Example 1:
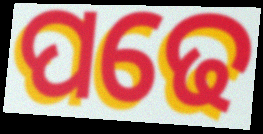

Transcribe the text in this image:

ପଢେ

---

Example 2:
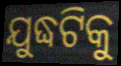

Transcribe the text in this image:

ଯୁଦ୍ଧଟିକୁ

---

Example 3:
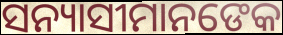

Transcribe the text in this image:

ସନ୍ୟାସୀମାନଙେକ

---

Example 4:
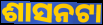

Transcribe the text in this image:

ଶାସନଟା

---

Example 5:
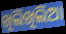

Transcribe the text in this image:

ଖିଲିଖିଲିଆ